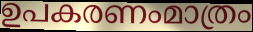
ഉപകരണംമാത്രം